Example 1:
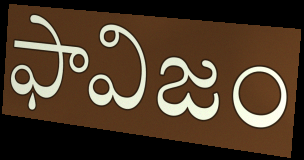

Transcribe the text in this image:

ఫావిజం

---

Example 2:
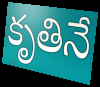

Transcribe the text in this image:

కృతినే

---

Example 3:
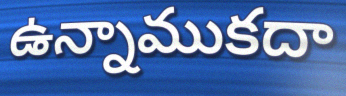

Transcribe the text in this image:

ఉన్నాముకదా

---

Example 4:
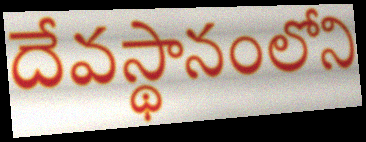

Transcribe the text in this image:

దేవస్థానంలోని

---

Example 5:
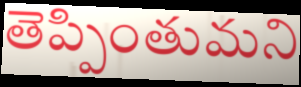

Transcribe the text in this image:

తెప్పింతుమని